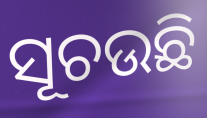
ସୂଚଉଛି